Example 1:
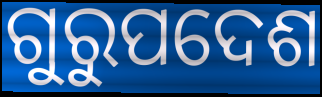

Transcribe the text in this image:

ଗୁରୁପଦେଶ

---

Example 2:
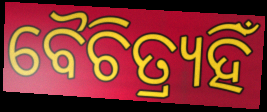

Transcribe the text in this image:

ବୈଚିତ୍ର୍ୟହିଁ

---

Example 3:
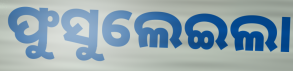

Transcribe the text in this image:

ଫୁସୁଲେଇଲା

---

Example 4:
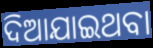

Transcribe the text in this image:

ଦିଆଯାଇଥବା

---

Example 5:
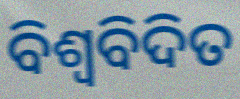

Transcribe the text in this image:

ବିଶ୍ବବିଦିତ